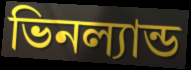
ভিনল্যান্ড